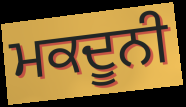
ਮਕਦੂਨੀ